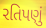
રતિપણું